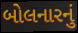
બોલનારનું